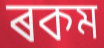
ৰকম